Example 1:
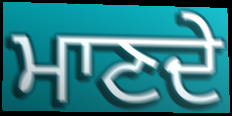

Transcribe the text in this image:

ਮਾਣਦੇ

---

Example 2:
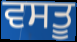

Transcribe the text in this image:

ਵਸਤੂ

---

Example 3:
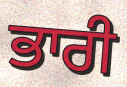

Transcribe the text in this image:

ਭਾਰੀ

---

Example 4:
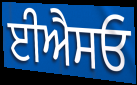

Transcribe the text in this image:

ਈਐਸਓ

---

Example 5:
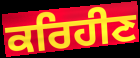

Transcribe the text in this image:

ਕਰਿਹੀਣ